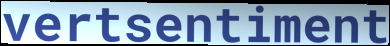
vertsentiment